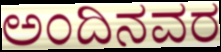
ಅಂದಿನವರ